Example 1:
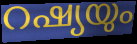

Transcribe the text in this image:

റഷ്യയും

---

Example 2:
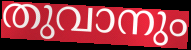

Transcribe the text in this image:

തുവാനും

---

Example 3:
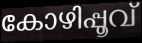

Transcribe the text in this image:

കോഴിപ്പൂവ്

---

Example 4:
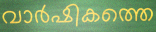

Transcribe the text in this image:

വാർഷികത്തെ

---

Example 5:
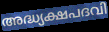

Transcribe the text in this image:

അദ്ധ്യക്ഷപദവി